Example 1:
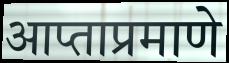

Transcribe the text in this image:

आप्ताप्रमाणे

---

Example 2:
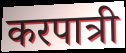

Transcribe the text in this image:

करपात्री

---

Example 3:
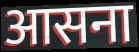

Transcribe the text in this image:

आसना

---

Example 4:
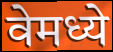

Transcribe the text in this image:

वेमध्ये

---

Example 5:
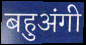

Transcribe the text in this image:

बहुअंगी